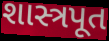
શાસ્ત્રપૂત